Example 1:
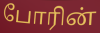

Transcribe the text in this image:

போரின்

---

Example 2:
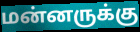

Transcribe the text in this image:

மன்னருக்கு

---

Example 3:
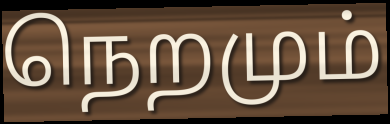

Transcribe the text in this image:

நெறமும்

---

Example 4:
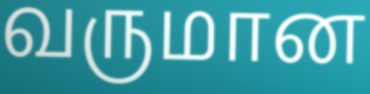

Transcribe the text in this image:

வருமான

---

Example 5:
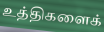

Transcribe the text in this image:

உத்திகளைக்